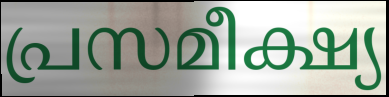
പ്രസമീക്ഷ്യ